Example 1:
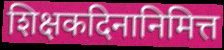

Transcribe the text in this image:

शिक्षकदिनानिमित्त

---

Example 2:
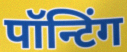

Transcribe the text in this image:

पॉन्टिंग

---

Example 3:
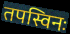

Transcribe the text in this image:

तपस्विनः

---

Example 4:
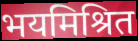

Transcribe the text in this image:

भयमिश्रित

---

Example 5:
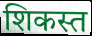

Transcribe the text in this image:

शिकस्त